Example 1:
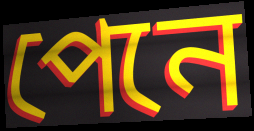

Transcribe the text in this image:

পেনে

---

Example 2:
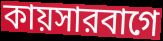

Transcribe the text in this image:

কায়সারবাগে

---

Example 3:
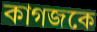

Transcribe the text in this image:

কাগজকে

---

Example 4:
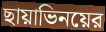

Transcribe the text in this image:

ছায়াভিনয়ের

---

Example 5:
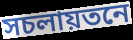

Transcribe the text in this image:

সচলায়তনে